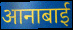
आनाबाई